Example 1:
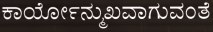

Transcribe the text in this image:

ಕಾರ್ಯೋನ್ಮುಖವಾಗುವಂತೆ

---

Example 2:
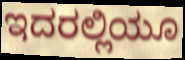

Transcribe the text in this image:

ಇದರಲ್ಲಿಯೂ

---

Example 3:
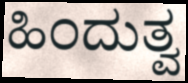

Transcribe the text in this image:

ಹಿಂದುತ್ವ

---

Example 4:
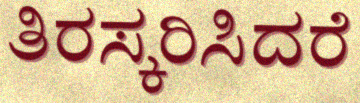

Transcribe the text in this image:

ತಿರಸ್ಕರಿಸಿದರೆ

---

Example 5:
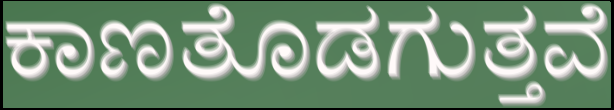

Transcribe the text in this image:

ಕಾಣತೊಡಗುತ್ತವೆ